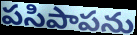
పసిపాపను